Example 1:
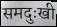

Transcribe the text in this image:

समदुःखी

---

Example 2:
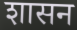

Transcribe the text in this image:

शासन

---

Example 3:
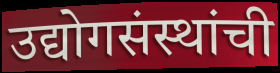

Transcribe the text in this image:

उद्योगसंस्थांची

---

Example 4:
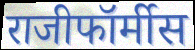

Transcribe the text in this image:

राजीफॉर्मीस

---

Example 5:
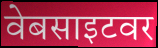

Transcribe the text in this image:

वेबसाइटवर